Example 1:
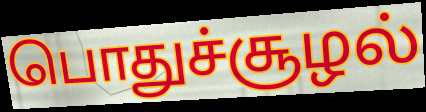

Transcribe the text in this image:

பொதுச்சூழல்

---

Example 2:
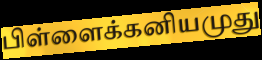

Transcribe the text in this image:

பிள்ளைக்கனியமுது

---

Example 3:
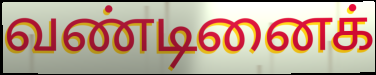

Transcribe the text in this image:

வண்டினைக்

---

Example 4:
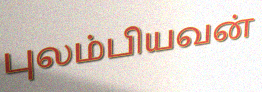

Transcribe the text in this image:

புலம்பியவன்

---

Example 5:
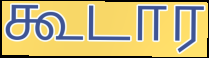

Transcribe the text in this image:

கூடார